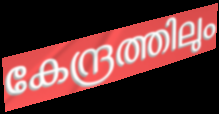
കേന്ദ്രത്തിലും